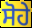
ਸੋਹੇ